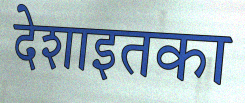
देशाइतका